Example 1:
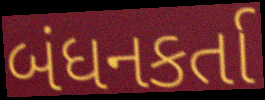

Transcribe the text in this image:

બંધનકર્તા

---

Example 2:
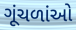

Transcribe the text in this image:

ગૂંચળાંઓ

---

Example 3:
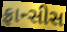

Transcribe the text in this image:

ફ્રાન્સીસ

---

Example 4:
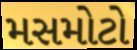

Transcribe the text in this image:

મસમોટો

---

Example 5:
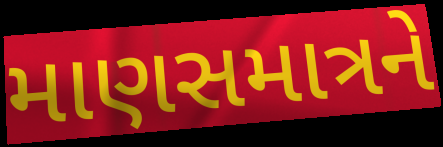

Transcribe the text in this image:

માણસમાત્રને